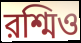
রশ্মিও